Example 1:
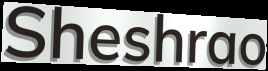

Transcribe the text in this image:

Sheshrao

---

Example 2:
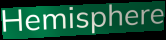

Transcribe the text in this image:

Hemisphere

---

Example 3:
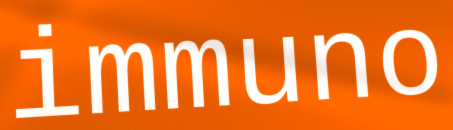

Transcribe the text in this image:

immuno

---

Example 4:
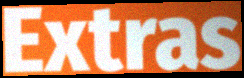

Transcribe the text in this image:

Extras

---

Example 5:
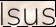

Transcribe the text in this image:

Isus